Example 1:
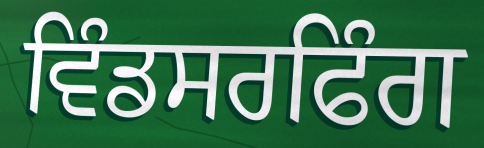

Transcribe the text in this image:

ਵਿੰਡਸਰਫਿੰਗ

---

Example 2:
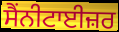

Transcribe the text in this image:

ਸੈਂਨੀਟਾਈਜ਼ਰ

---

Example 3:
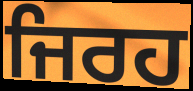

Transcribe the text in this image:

ਜਿਰਹ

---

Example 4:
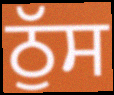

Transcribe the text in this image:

ਠੁੱਸ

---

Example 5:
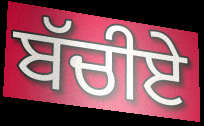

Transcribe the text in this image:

ਬੱਚੀਏ